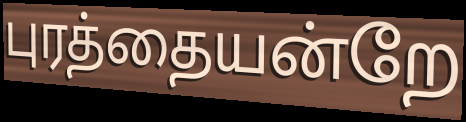
புரத்தையன்றே